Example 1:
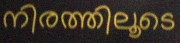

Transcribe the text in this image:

നിരത്തിലൂടെ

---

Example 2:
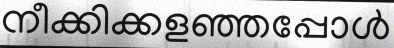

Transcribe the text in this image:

നീക്കിക്കളഞ്ഞപ്പോൾ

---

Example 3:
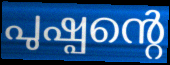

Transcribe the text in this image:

പുഷ്പന്റെ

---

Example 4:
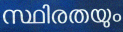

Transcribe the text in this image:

സ്ഥിരതയും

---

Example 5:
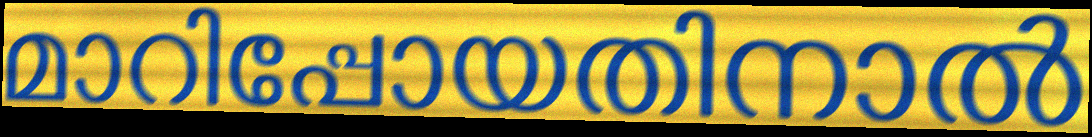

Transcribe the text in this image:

മാറിപ്പോയതിനാൽ